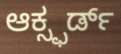
ಆಕ್ಸ್ಫರ್ಡ್